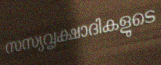
സസ്യവൃക്ഷാദികളുടെ